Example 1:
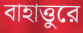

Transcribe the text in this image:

বাহাত্তুরে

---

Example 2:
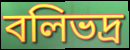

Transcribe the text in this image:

বলিভদ্র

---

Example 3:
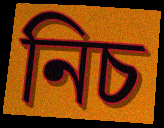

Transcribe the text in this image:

নিচ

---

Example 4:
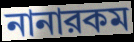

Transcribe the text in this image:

নানারকম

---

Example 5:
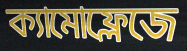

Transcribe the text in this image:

ক্যামোফ্লেজে